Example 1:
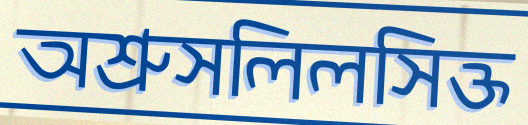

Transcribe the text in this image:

অশ্রুসলিলসিক্ত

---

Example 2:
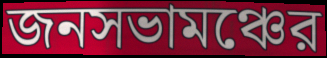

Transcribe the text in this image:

জনসভামঞ্চের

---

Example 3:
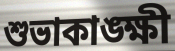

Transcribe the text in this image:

শুভাকাঙ্ক্ষী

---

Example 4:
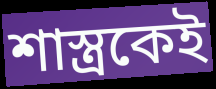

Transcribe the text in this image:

শাস্ত্রকেই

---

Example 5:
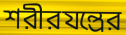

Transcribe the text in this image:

শরীরযন্ত্রের